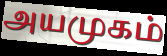
அயமுகம்